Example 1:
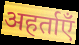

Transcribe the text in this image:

अहर्ताएँ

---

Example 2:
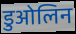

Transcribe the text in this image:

डुओलिन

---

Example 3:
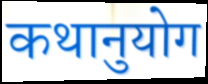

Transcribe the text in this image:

कथानुयोग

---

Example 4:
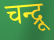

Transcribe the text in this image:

चन्द्रू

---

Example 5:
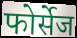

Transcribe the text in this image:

फोर्सेज